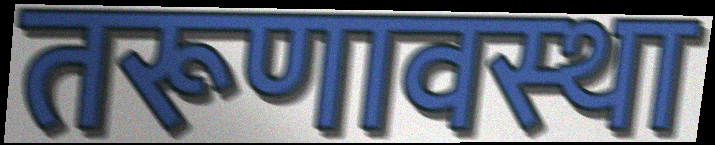
तरूणावस्था